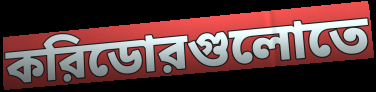
করিডোরগুলোতে